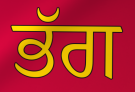
ਭੱਗ